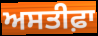
ਅਸਤੀਫ਼ਾ